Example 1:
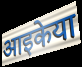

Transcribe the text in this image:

आइकेया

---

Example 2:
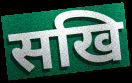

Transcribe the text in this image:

सखि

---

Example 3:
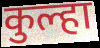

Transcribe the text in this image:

कुल्हा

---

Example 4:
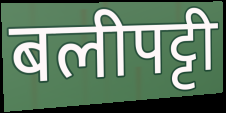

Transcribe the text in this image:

बलीपट्टी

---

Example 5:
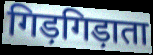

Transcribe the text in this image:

गिड़गिड़ाता